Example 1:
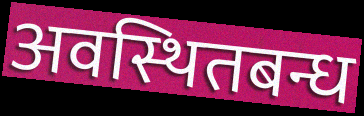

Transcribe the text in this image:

अवस्थितबन्ध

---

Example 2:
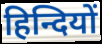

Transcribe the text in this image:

हिन्दियों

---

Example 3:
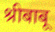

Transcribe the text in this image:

श्रीबाबू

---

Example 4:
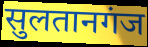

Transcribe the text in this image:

सुलतानगंज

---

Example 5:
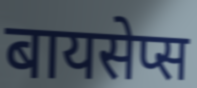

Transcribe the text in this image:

बायसेप्स